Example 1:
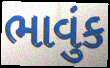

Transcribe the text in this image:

ભાવુંક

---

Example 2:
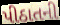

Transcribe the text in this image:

પીઠાતની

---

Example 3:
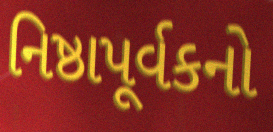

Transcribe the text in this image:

નિષ્ઠાપૂર્વકનો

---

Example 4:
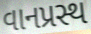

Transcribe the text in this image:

વાનપ્રસ્થ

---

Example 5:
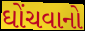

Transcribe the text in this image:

ઘોંચવાનો